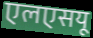
एलएसयू